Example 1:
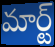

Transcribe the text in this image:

మార్ట్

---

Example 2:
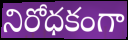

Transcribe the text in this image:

నిరోధకంగా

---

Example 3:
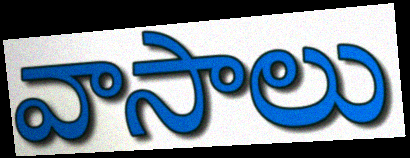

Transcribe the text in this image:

వాసాలు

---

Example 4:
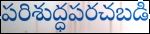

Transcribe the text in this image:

పరిశుద్ధపరచబడి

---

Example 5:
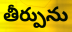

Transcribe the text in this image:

తీర్పును